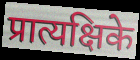
प्रात्यक्षिके